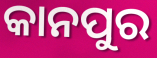
କାନପୁର